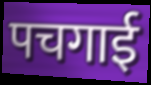
पचगाई